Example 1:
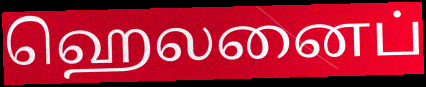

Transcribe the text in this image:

ஹெலனைப்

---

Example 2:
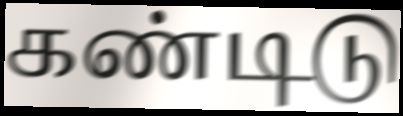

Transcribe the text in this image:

கண்டிடு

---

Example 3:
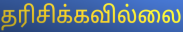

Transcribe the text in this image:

தரிசிக்கவில்லை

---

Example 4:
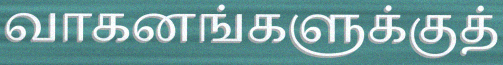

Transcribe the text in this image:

வாகனங்களுக்குத்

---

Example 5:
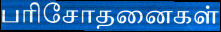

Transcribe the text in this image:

பரிசோதனைகள்